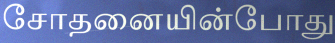
சோதனையின்போது